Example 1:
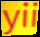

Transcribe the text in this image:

yii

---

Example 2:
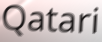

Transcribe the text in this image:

Qatari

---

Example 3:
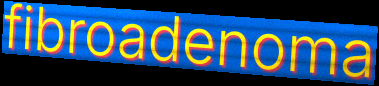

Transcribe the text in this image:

fibroadenoma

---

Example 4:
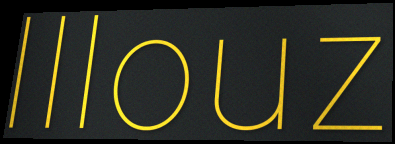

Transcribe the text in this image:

Illouz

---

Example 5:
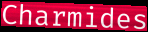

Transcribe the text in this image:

Charmides